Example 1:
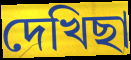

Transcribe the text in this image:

দেখিছা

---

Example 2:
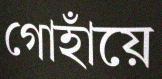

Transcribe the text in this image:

গোহাঁয়ে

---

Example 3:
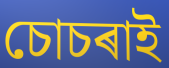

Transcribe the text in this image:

চোচৰাই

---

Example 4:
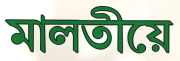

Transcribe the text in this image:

মালতীয়ে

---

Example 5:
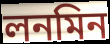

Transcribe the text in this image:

লনমিন